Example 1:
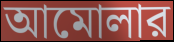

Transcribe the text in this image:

আমোলার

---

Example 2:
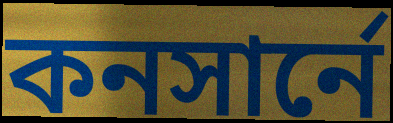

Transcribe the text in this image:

কনসার্নে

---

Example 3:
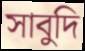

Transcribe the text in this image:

সাবুদি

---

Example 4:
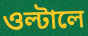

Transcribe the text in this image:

ওল্টালে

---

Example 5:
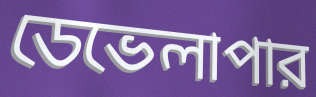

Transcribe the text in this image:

ডেভেলাপার